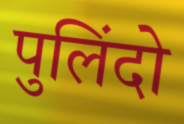
पुलिंदो